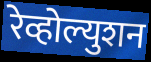
रेव्होल्युशन